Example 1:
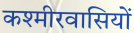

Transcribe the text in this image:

कश्मीरवासियों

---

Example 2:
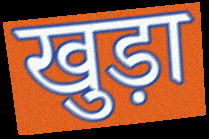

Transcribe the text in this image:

खुड़ा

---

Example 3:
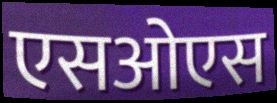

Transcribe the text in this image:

एसओएस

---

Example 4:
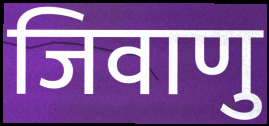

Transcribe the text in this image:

जिवाणु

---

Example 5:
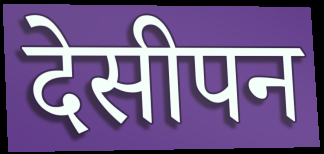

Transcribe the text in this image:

देसीपन